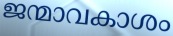
ജന്മാവകാശം